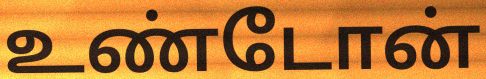
உண்டோன்